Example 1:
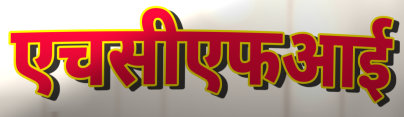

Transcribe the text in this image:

एचसीएफआई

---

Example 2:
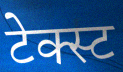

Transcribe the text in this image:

टेक्स्ट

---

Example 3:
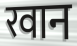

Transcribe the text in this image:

रवान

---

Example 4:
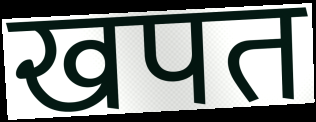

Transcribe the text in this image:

खपत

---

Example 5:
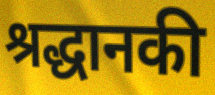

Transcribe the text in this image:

श्रद्धानकी